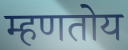
म्हणतोय